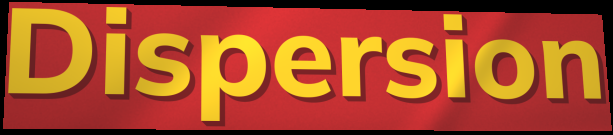
Dispersion